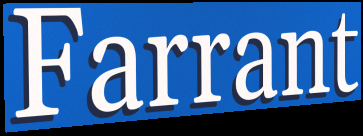
Farrant